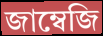
জাম্বেজি